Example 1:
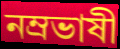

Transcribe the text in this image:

নম্রভাষী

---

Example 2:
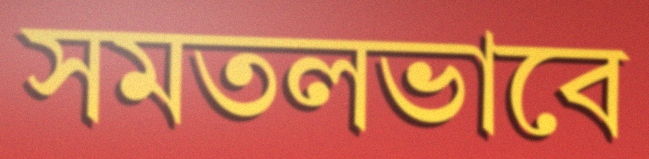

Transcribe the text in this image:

সমতলভাবে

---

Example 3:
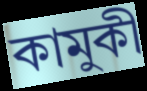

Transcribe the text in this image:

কামুকী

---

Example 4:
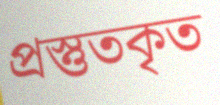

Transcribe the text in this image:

প্রস্তুতকৃত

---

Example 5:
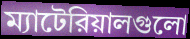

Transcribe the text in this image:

ম্যাটেরিয়ালগুলো